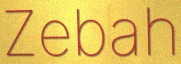
Zebah